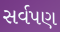
સર્વપણ